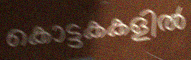
കൊട്ടകകളിൽ